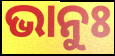
ଭାନୁଃ